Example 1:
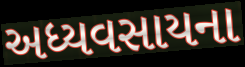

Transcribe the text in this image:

અધ્યવસાયના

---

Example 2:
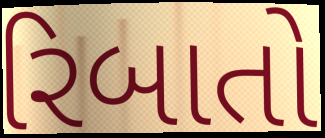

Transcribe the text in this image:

રિબાતો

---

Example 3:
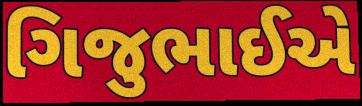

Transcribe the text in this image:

ગિજુભાઈએ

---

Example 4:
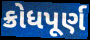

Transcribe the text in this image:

ક્રોધપૂર્ણ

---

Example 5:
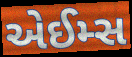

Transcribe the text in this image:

એઈમ્સ